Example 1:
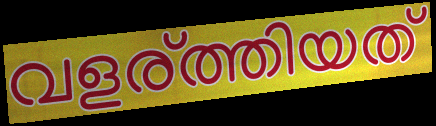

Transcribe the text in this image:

വളര്ത്തിയത്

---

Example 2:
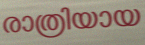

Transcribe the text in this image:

രാത്രിയായ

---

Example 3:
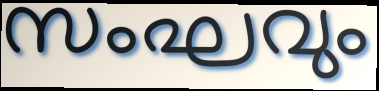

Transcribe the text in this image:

സംഘവും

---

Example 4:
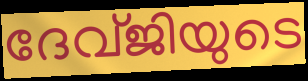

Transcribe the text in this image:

ദേവ്ജിയുടെ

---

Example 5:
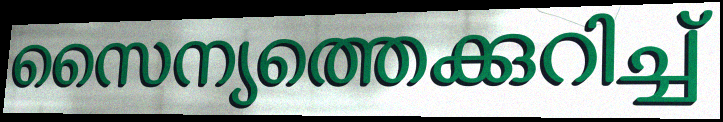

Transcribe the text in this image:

സൈന്യത്തെക്കുറിച്ച്